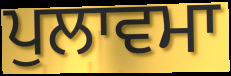
ਪੁਲਾਵਮਾ